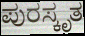
ಪುರಸ್ಕೃತ